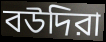
বউদিরা